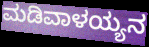
ಮಡಿವಾಳಯ್ಯನ